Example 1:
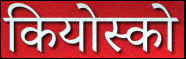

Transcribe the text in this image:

कियोस्को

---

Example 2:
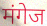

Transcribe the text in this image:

मंगेज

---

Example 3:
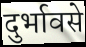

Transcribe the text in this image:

दुर्भावसे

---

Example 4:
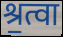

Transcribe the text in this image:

श्र॒त्वा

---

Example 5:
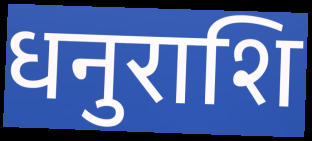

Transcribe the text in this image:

धनुराशि